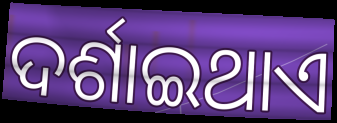
ଦର୍ଶାଇଥାଏ